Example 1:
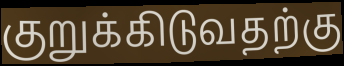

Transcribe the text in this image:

குறுக்கிடுவதற்கு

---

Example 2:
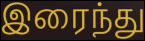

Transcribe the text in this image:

இரைந்து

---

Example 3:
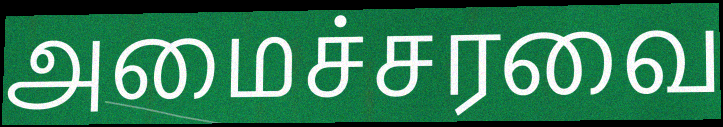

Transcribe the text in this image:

அமைச்சரவை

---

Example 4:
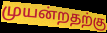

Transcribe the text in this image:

முயன்றதற்கு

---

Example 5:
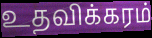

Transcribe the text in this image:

உதவிக்கரம்